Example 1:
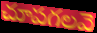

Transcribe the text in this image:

చూపగలవె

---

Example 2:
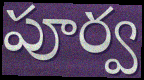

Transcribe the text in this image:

పూర్వ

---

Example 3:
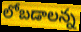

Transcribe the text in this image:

లోబడాలన్న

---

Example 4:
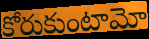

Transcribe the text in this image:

కోరుకుంటామో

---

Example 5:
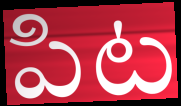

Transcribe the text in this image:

పిట